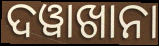
ଦୱାଖାନା